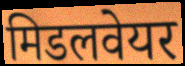
मिडलवेयर